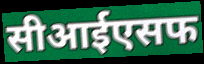
सीआईएसफ